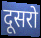
दूसरो